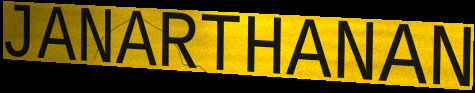
JANARTHANAN